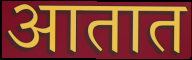
आतात